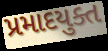
પ્રમાદયુક્ત